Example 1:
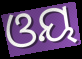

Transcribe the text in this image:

ଓୟ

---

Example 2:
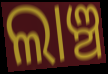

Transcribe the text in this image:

ଲାଞ୍ଚ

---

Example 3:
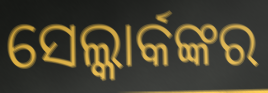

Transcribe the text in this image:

ସେଲ୍କାର୍କଙ୍କର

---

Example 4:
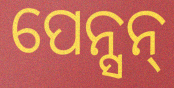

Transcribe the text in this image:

ପେନ୍ସନ୍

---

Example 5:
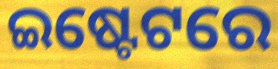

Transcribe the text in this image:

ଇଷ୍ଟେଟରେ